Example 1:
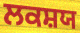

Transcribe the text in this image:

ਲਕਸ਼ਯ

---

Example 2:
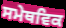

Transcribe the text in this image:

ਸਮੇਥਵਿਕ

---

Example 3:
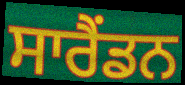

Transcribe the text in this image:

ਸਾਰੈਂਡਨ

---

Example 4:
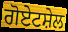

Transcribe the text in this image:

ਗੋਏਟਸ਼ੇਲ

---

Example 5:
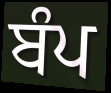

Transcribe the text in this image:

ਬੰਪ